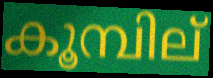
കൂമ്പില്